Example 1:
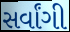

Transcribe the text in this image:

સર્વાંગી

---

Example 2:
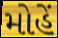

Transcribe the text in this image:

મોહેં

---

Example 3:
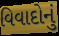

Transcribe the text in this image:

વિવાદોનું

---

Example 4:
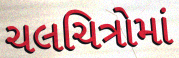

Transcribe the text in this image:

ચલચિત્રોમાં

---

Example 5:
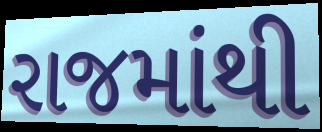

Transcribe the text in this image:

રાજમાંથી